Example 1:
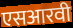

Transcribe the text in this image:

एसआरवी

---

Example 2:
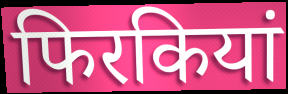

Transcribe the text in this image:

फिरकियां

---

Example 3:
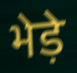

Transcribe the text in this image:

भेड़े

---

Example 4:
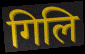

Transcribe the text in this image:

गिलि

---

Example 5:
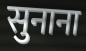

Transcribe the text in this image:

सुनाना